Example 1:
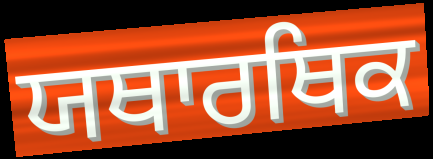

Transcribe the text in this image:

ਯਥਾਰਥਿਕ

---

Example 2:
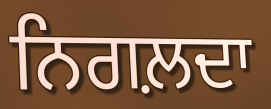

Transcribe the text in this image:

ਨਿਗਲ਼ਦਾ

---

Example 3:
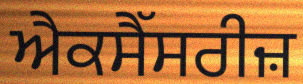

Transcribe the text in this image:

ਐਕਸੈੱਸਰੀਜ਼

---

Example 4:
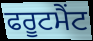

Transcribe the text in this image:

ਫਰੂਟਮੈਂਟ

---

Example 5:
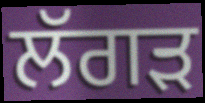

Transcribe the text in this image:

ਲੱਗੜ